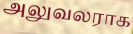
அலுவலராக